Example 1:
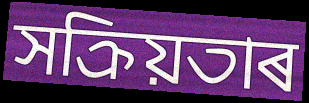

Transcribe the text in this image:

সক্ৰিয়তাৰ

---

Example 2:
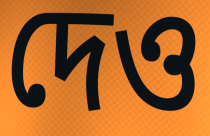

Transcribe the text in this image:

দেও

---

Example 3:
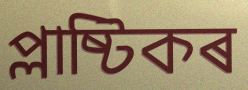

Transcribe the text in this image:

প্লাষ্টিকৰ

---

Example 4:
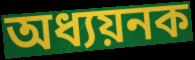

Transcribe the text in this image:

অধ্যয়নক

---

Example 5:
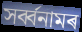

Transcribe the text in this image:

সৰ্ব্বনামৰ